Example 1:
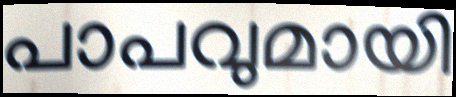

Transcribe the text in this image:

പാപവുമായി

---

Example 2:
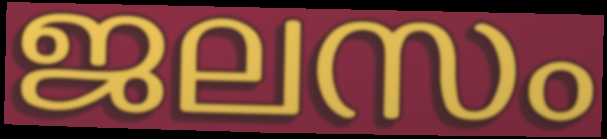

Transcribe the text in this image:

ജലസം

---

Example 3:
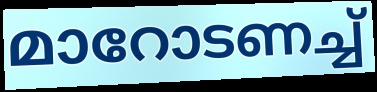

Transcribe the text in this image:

മാറോടണച്ച്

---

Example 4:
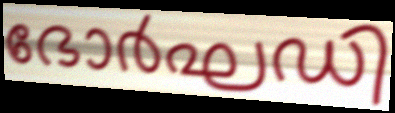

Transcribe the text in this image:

ഭോർഘഡി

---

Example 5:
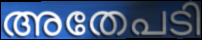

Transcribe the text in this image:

അതേപടി